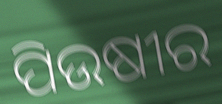
ପିଉଷୀର